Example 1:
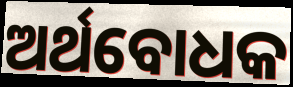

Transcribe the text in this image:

ଅର୍ଥବୋଧକ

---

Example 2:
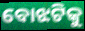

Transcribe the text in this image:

ବୋଝଟିକୁ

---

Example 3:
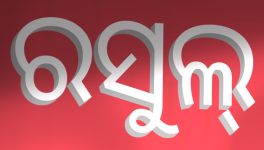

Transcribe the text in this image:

ରସୁଲ୍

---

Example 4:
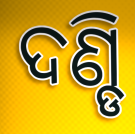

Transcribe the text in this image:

ଦଣ୍ଡି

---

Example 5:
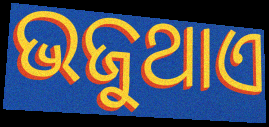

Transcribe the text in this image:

ଭଜୁଥାଏ